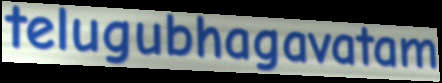
telugubhagavatam